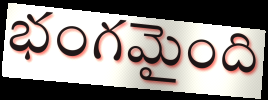
భంగమైంది